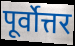
पूर्वोत्तर